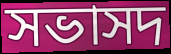
সভাসদ